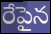
రేపైన